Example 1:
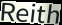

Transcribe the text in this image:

Reith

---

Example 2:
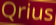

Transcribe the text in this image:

Qrius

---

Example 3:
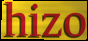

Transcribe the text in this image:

hizo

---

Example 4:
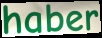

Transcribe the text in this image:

haber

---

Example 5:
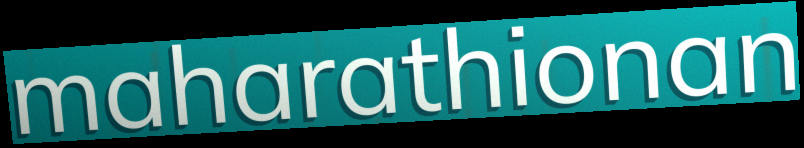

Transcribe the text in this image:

maharathionan